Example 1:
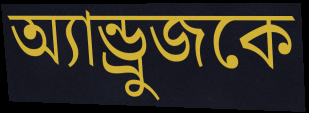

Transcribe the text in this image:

অ্যান্ড্রুজকে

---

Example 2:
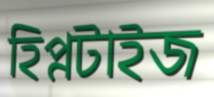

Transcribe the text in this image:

হিপ্নটাইজ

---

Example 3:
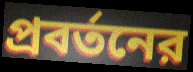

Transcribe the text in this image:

প্রবর্তনের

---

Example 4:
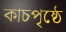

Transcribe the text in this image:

কাচপৃষ্ঠে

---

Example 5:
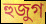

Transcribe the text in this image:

হুজুগ